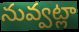
నువ్వట్లా